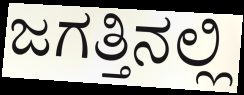
ಜಗತ್ತಿನಲ್ಲಿ